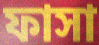
ফাসা